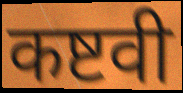
कष्टवी